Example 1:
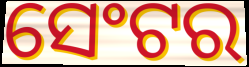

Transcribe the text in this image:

ସେଂଟର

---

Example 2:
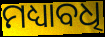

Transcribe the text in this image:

ମଧ୍ୟାବଧି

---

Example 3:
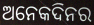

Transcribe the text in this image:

ଅନେକଦିନର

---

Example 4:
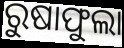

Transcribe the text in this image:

ରୁଷାଫୁଲା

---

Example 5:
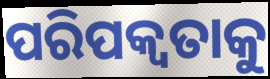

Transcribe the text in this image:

ପରିପକ୍ୱତାକୁ